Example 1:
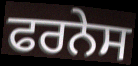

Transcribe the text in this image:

ਫਰਨੇਸ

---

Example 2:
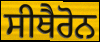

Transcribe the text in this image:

ਸੀਥੈਰੋਨ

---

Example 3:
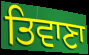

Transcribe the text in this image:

ਤਿਵਾਣਾ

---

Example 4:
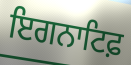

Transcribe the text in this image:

ਇਗਨਾਟਿਫ਼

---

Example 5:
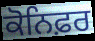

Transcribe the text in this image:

ਕੋਨਿਫ਼ਰ